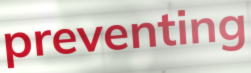
preventing